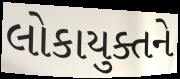
લોકાયુક્તને